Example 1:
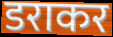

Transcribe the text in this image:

डराकर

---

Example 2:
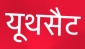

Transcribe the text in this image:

यूथसैट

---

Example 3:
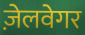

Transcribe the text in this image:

ज़ेलवेगर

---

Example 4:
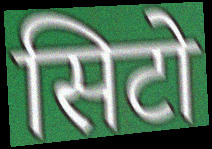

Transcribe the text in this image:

सिटो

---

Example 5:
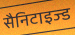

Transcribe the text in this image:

सैनिटाइज्ड